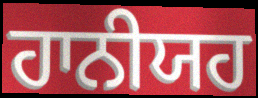
ਹਾਨੀਯਹ